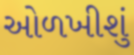
ઓળખીશું